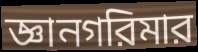
জ্ঞানগরিমার